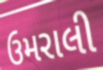
ઉમરાલી